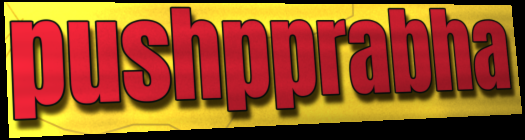
pushpprabha